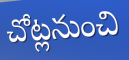
చోట్లనుంచి